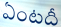
ఏంటదీ